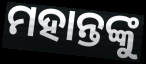
ମହାନ୍ତଙ୍କୁ